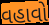
વહાવો